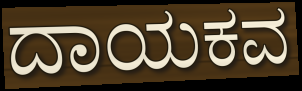
ದಾಯಕವ